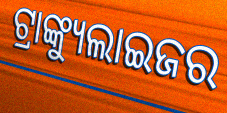
ଟ୍ରାଙ୍କ୍ୟୁଲାଇଜର